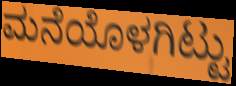
ಮನೆಯೊಳಗಿಟ್ಟು